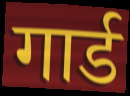
गार्ड